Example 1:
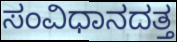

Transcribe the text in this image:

ಸಂವಿಧಾನದತ್ತ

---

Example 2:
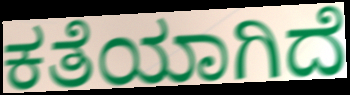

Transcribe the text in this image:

ಕತೆಯಾಗಿದೆ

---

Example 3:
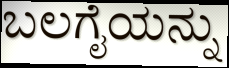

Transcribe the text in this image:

ಬಲಗೈಯನ್ನು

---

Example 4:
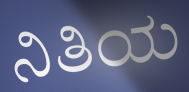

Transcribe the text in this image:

ನಿತಿಯ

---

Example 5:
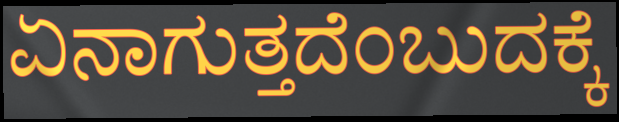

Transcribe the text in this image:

ಏನಾಗುತ್ತದೆಂಬುದಕ್ಕೆ